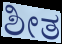
ಶೀತ